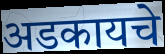
अडकायचे